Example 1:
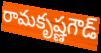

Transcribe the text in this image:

రామకృష్ణగౌడ్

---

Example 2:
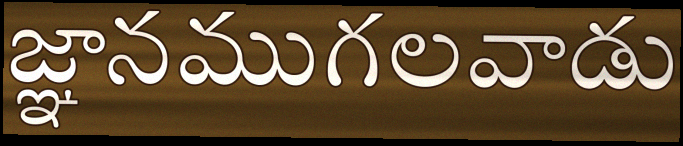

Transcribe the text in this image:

జ్ఞానముగలవాడు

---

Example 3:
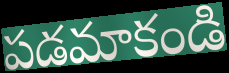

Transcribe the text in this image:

పడమాకండి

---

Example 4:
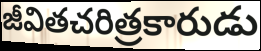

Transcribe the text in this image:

జీవితచరిత్రకారుడు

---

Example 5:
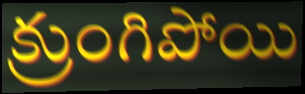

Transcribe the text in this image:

క్రుంగిపోయి